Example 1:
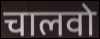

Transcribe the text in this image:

चालवो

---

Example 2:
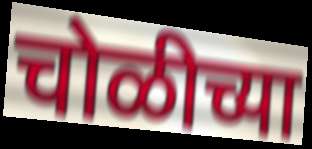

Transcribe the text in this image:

चोळीच्या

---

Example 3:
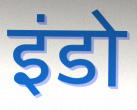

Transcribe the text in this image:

इंडो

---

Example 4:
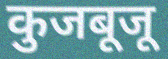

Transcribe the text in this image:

कुजबूजू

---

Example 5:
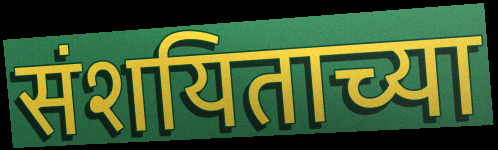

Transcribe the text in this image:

संशयिताच्या